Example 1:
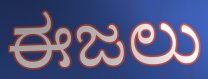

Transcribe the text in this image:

ಈಜಲು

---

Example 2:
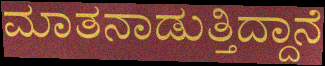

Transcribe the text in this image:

ಮಾತನಾಡುತ್ತಿದ್ದಾನೆ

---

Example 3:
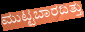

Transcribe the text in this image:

ಮುಟ್ಟಬಾರದಿತ್ತು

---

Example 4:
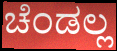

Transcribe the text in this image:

ಚೆಂಡಲ್ಲ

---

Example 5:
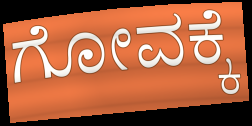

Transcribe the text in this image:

ಗೋವಕ್ಕೆ